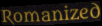
Romanized